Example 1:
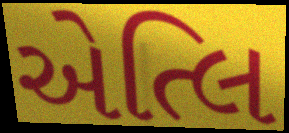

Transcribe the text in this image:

એત્લિ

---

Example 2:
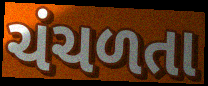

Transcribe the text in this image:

ચંચળતા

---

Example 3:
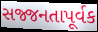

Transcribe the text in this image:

સજ્જનતાપૂર્વક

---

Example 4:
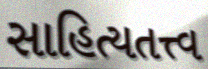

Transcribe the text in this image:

સાહિત્યતત્ત્વ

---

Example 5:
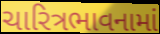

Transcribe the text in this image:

ચારિત્રભાવનામાં